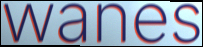
wanes